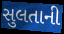
સુલતાની